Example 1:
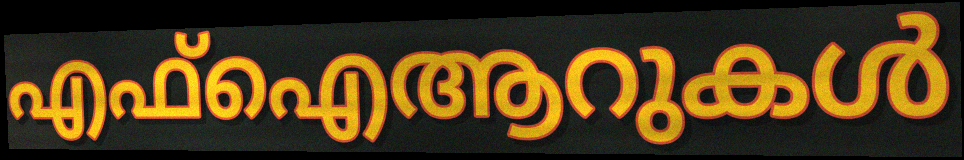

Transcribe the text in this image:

എഫ്ഐആറുകൾ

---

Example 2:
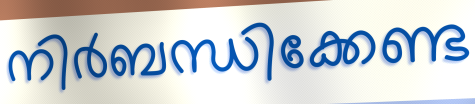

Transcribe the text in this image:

നിർബന്ധിക്കേണ്ട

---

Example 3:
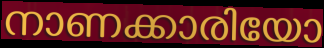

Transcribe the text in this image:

നാണക്കാരിയോ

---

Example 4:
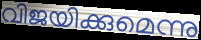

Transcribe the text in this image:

വിജയിക്കുമെന്നു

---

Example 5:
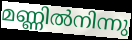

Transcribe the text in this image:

മണ്ണിൽനിന്നു